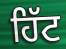
ਹਿੱਟ